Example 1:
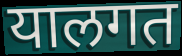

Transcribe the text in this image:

यालगत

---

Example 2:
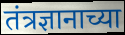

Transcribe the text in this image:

तंत्रज्ञानाच्या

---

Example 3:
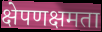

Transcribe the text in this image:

क्षेपणक्षमता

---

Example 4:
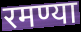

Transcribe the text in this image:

रमण्या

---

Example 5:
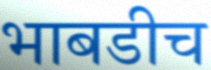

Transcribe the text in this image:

भाबडीच